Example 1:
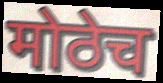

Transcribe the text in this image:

मोठेच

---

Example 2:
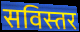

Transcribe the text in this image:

सविस्तर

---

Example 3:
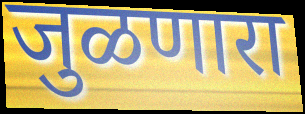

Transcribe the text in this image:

जुळणारा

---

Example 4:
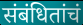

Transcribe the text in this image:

संबंधितांचं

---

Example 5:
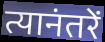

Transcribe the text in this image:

त्यानंतरें